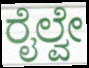
ರೈಲ್ವೇ